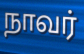
நாவர்